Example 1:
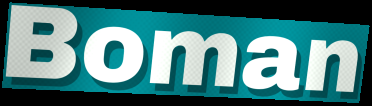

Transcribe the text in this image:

Boman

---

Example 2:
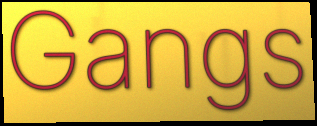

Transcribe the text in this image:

Gangs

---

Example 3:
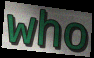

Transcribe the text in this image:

who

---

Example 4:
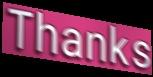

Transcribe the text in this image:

Thanks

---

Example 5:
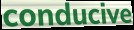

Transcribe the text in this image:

conducive